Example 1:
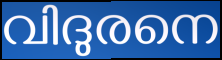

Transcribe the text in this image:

വിദുരനെ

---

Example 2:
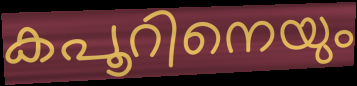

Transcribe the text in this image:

കപൂറിനെയും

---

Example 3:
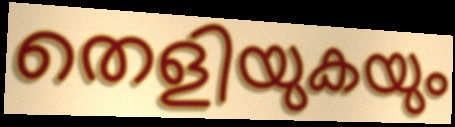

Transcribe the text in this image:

തെളിയുകയും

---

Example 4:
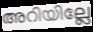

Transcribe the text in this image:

അറിയില്ലേ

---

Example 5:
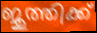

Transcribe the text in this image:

ജുത്തിക്ക്